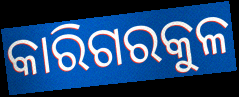
କାରିଗରକୁଳ